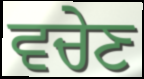
ਵਚੇਣ